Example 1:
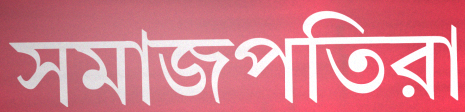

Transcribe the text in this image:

সমাজপতিরা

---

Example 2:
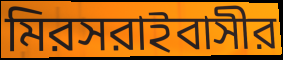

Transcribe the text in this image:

মিরসরাইবাসীর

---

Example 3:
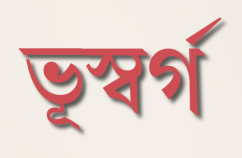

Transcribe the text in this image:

ভূস্বর্গ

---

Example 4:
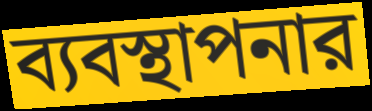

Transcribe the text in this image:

ব্যবস্থাপনার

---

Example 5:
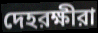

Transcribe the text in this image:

দেহরক্ষীরা